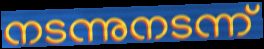
നടന്നുനടന്ന്